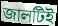
জালটিই